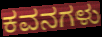
ಕವನಗಳು